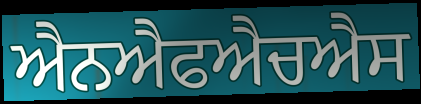
ਐਨਐਫਐਚਐਸ